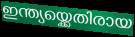
ഇന്ത്യയ്ക്കെതിരായ